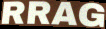
RRAG